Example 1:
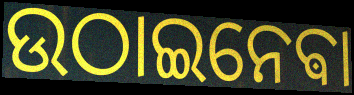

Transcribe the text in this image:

ଉଠାଇନେଵା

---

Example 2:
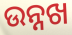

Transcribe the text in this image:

ଉନ୍ନଖ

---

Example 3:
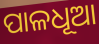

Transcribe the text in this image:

ପାଳଧୂଆ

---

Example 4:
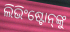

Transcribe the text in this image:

ଲିଭିଂଷ୍ଟୋନ୍‌ଙ୍କୁ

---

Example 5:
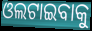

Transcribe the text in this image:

ଓଲଟାଇବାକୁ